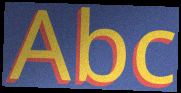
Abc